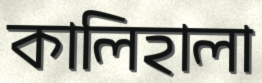
কালিহালা